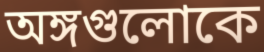
অঙ্গগুলোকে